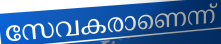
സേവകരാണെന്ന്